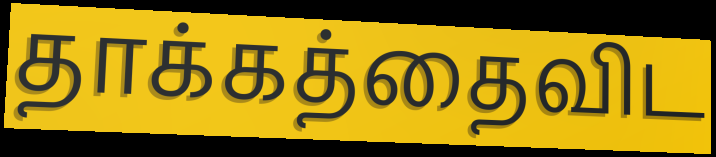
தாக்கத்தைவிட